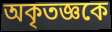
অকৃতজ্ঞকে